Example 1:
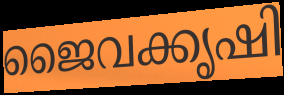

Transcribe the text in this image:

ജൈവക്കൃഷി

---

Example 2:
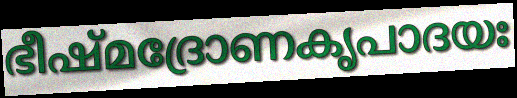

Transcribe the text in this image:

ഭീഷ്മദ്രോണകൃപാദയഃ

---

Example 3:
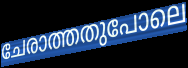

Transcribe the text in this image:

ചേരാത്തതുപോലെ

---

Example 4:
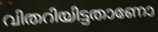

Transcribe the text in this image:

വിതറിയിട്ടതാണോ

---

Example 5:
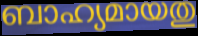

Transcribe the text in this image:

ബാഹ്യമായതു